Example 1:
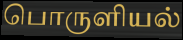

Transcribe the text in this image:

பொருளியல்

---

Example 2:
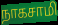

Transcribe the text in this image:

நாகசாமி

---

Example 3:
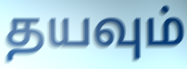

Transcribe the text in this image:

தயவும்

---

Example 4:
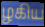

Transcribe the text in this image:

ழகிய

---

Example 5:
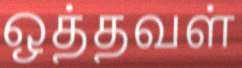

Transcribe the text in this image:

ஒத்தவள்